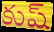
కుష్